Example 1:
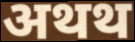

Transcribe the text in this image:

अथथ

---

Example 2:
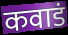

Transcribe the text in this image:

कवाडं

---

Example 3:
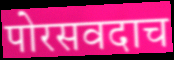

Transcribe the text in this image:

पोरसवदाच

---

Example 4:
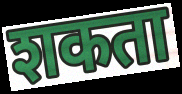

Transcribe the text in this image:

शकता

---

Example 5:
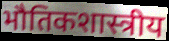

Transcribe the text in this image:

भौतिकशास्त्रीय